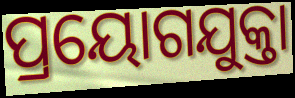
ପ୍ରୟୋଗଯୁକ୍ତା